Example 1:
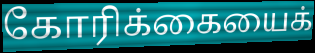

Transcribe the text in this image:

கோரிக்கையைக்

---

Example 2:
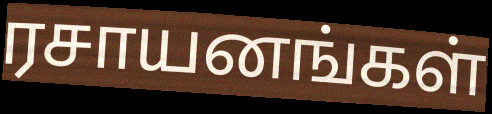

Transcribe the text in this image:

ரசாயனங்கள்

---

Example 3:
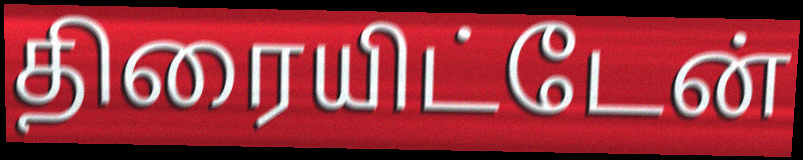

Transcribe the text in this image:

திரையிட்டேன்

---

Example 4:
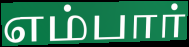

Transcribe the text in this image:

எம்பார்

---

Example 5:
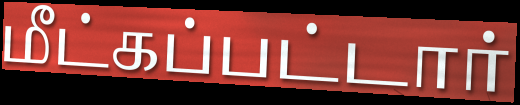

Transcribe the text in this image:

மீட்கப்பட்டார்